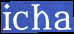
icha